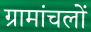
ग्रामांचलों